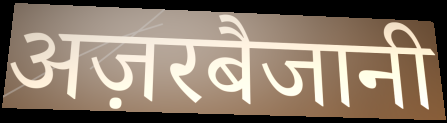
अज़रबैजानी